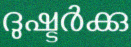
ദുഷ്ടർക്കു